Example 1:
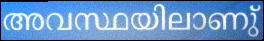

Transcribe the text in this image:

അവസ്ഥയിലാണു്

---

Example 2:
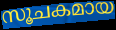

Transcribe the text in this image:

സൂചകമായ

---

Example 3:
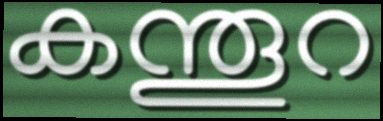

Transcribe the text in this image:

കന്തൂറ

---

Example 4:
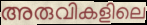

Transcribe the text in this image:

അരുവികളിലെ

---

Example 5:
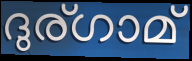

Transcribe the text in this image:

ദുര്ഗാമ്